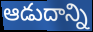
ఆడుదాన్ని